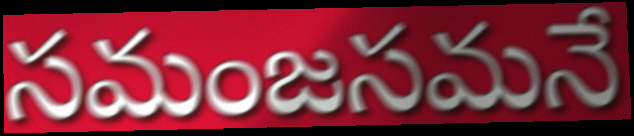
సమంజసమనే